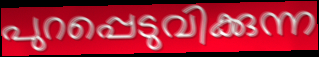
പുറപ്പെടുവിക്കുന്ന